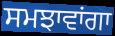
ਸਮਝਾਵਾਂਗਾ